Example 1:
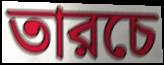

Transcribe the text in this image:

তারচে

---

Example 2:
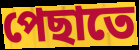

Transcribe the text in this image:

পেছাতে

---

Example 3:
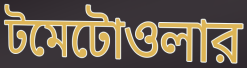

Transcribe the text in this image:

টমেটোওলার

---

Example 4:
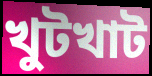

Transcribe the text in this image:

খুটখাট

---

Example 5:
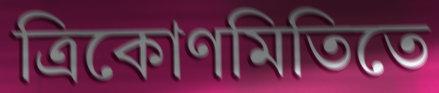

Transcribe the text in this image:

ত্রিকোণমিতিতে